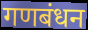
गणबंधन